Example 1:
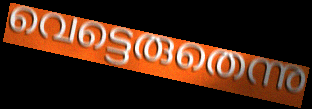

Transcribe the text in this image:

വെട്ടെരുതെന്നു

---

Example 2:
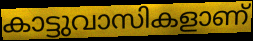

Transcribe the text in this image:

കാട്ടുവാസികളാണ്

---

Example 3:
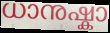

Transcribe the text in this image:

ധാനുഷ്കാ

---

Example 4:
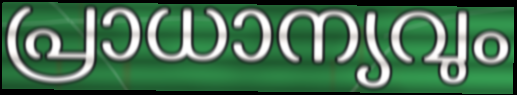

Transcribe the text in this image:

പ്രാധാന്യവും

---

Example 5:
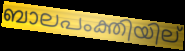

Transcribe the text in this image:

ബാലപംക്തിയില്